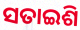
ସତାଇଶି